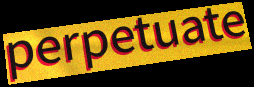
perpetuate